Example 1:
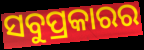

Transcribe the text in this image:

ସବୁପ୍ରକାରର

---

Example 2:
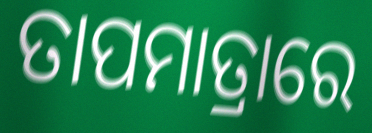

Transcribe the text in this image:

ତାପମାତ୍ରାରେ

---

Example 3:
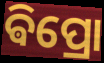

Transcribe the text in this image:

ଵିପ୍ରୋ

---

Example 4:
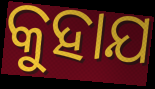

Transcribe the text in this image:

କୁହାଯ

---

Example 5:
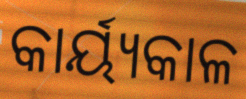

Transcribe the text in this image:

କାର୍ୟ୍ୟକାଳ